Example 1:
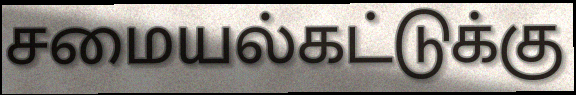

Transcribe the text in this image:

சமையல்கட்டுக்கு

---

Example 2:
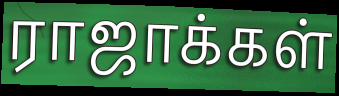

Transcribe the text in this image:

ராஜாக்கள்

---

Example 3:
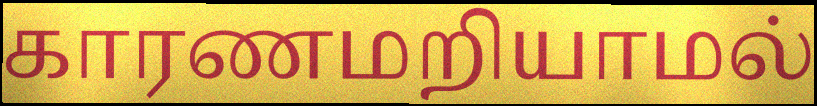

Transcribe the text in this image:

காரணமறியாமல்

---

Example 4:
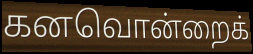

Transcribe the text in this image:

கனவொன்றைக்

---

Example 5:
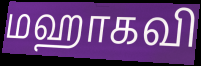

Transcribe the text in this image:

மஹாகவி